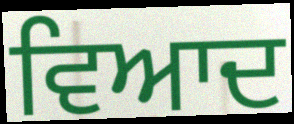
ਵਿਆਦ